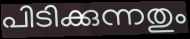
പിടിക്കുന്നതും